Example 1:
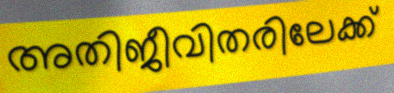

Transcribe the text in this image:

അതിജീവിതരിലേക്ക്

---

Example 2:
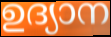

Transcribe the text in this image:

ഉദ്യാന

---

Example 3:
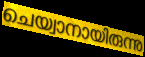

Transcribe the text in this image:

ചെയ്വാനായിരുന്നു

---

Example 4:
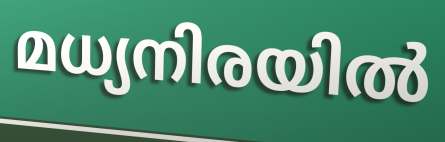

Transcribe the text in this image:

മധ്യനിരയിൽ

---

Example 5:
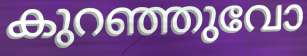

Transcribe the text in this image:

കുറഞ്ഞുവോ